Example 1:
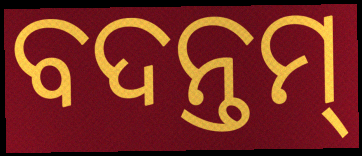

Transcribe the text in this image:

ବଦନ୍ତମ୍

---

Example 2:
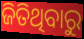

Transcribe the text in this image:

ଜିତିଥିବାରୁ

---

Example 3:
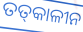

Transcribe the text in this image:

ତତ୍‌କାଳୀନ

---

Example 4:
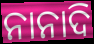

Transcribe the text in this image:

ନାନାଦି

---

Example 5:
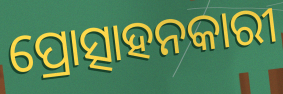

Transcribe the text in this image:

ପ୍ରୋତ୍ସାହନକାରୀ